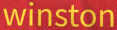
winston